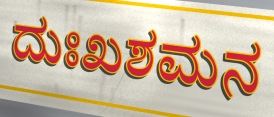
ದುಃಖಶಮನ